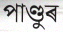
পাণ্ডুৰ